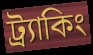
ট্র্যাকিং